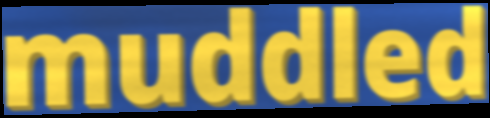
muddled